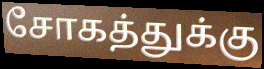
சோகத்துக்கு